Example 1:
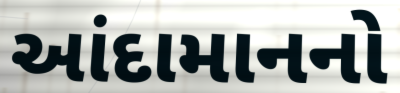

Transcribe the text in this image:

આંદામાનનો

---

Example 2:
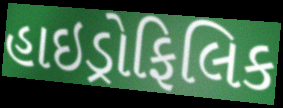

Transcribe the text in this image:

હાઇડ્રોફિલિક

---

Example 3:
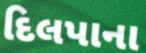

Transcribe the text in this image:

દિલપાના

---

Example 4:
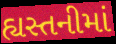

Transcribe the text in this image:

હ્યસ્તનીમાં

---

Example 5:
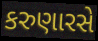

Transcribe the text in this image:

કરુણારસે